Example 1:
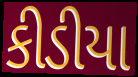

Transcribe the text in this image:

કીડીયા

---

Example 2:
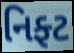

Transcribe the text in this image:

નિફ્ટ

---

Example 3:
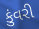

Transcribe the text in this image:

કુંવરી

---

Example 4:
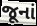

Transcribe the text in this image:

જૂનાં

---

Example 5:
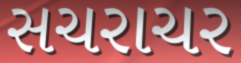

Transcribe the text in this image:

સચરાચર